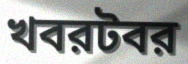
খবরটবর